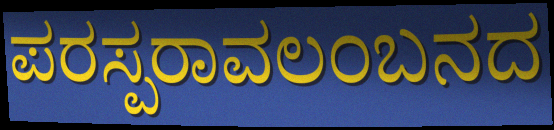
ಪರಸ್ಪರಾವಲಂಬನದ